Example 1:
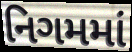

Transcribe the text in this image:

નિગમમાં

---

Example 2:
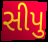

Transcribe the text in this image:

સીપુ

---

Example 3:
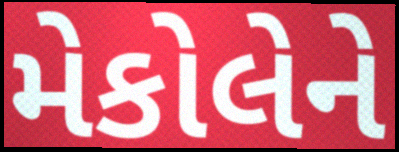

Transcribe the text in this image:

મેકોલેને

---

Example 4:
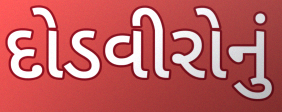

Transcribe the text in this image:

દોડવીરોનું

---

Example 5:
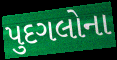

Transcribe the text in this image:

પુદગલોના